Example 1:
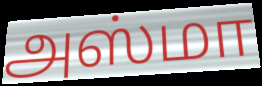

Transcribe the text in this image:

அஸ்மா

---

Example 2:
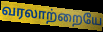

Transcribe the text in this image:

வரலாற்றையே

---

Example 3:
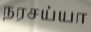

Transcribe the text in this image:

நரசய்யா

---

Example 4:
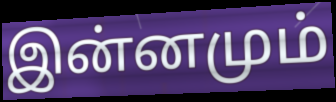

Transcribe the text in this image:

இன்னமும்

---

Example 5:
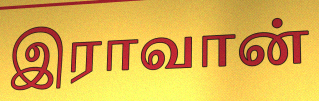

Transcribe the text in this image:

இராவான்